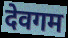
देवगम